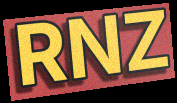
RNZ